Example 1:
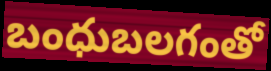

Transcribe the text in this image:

బంధుబలగంతో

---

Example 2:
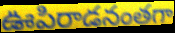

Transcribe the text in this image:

ఊపిరాడనంతగా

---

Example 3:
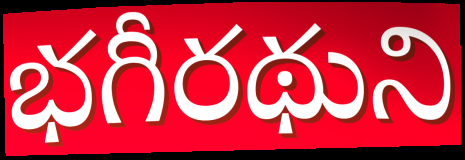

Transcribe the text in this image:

భగీరథుని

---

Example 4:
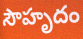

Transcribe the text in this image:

సౌహృదం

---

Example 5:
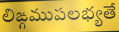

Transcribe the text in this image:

లిఙ్గముపలభ్యతే